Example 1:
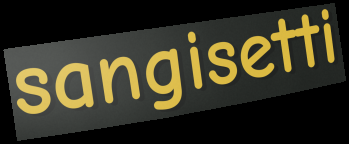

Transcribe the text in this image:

sangisetti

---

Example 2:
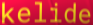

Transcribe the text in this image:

kelide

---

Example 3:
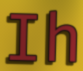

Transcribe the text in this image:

Ih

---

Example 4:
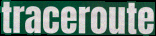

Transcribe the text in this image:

traceroute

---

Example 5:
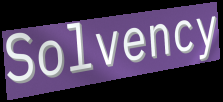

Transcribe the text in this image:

Solvency